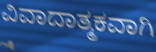
ವಿವಾದಾತ್ಮಕವಾಗಿ